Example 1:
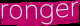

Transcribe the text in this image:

ronger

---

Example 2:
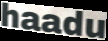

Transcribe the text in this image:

haadu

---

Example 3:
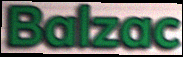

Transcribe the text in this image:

Balzac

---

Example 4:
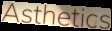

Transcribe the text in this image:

Asthetics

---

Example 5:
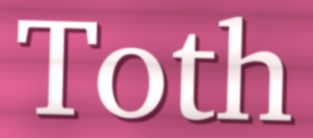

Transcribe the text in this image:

Toth